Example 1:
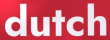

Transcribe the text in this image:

dutch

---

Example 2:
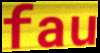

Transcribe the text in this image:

fau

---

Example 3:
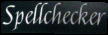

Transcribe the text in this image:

Spellchecker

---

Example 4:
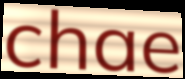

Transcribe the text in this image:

chae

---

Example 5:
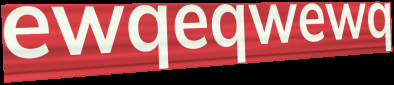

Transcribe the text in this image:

ewqeqwewq